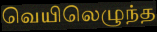
வெயிலெழுந்த